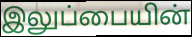
இலுப்பையின்